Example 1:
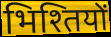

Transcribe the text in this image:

भिश्तियों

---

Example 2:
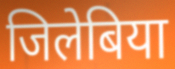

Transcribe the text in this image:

जिलेबिया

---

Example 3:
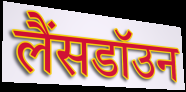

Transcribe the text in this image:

लैंसडॉउन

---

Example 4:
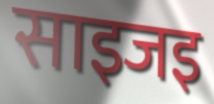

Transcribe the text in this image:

साइजइ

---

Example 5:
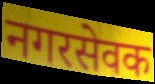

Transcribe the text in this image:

नगरसेवक